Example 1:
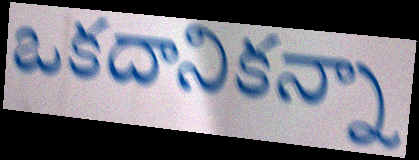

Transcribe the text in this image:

ఒకదానికన్నా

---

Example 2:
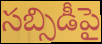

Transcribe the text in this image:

సబ్సిడీపై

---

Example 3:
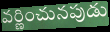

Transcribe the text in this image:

వర్ణించునపుడు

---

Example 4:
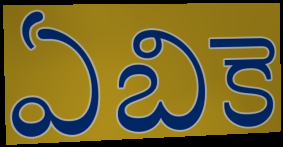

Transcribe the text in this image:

ఏబికె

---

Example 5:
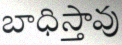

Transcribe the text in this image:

బాధిస్తావు